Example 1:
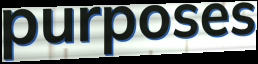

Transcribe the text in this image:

purposes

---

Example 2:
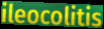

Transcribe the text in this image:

ileocolitis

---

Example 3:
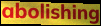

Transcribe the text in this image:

abolishing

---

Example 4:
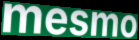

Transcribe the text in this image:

mesmo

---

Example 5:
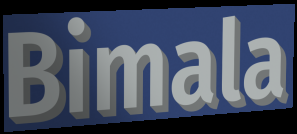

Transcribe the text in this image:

Bimala